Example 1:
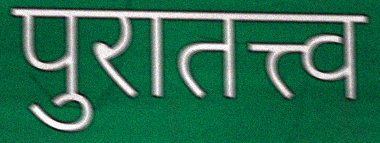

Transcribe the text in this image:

पुरातत्त्व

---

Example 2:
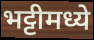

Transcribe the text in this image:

भट्टीमध्ये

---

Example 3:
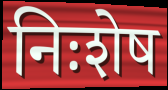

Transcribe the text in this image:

निःशेष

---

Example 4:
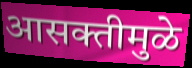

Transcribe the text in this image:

आसक्तीमुळे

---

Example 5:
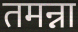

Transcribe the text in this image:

तमन्ना